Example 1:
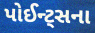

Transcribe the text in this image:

પોઈન્ટ્સના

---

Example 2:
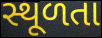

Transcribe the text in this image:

સ્થૂળતા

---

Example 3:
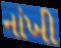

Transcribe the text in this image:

નાંખી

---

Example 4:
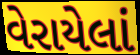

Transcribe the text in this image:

વેરાયેલાં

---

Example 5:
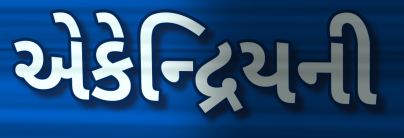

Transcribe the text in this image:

એકેન્દ્રિયની